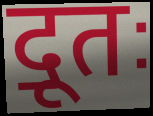
दू॒तः